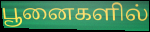
பூனைகளில்